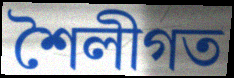
শৈলীগত